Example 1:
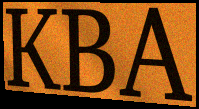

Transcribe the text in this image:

KBA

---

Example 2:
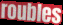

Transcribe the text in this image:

roubles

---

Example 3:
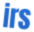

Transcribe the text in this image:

irs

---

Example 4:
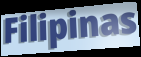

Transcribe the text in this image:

Filipinas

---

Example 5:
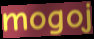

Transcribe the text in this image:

mogoj